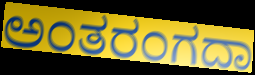
ಅಂತರಂಗದಾ